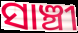
ସାଞ୍ଚୀ